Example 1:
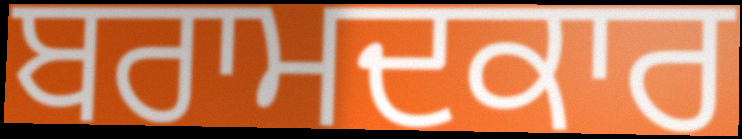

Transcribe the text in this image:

ਬਰਾਮਦਕਾਰ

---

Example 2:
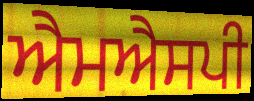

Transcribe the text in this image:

ਐਮਐਸਪੀ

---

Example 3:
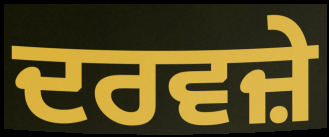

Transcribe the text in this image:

ਦਰਵਜ਼ੇ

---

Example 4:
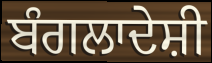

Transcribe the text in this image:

ਬੰਗਲਾਦੇਸ਼ੀ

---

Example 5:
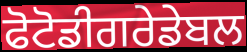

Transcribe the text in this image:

ਫੋਟੋਡੀਗਰੇਡੇਬਲ